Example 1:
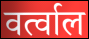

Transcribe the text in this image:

वर्त्वाल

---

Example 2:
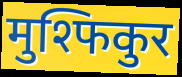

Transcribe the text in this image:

मुश्फिकुर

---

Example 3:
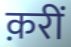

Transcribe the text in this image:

क़रीं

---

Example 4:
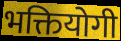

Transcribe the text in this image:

भक्तियोगी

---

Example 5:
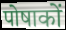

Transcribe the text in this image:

पोषाकों